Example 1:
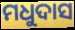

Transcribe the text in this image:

ମଧୁଦାସ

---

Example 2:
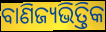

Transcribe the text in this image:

ବାଣିଜ୍ୟଭିତ୍ତିକ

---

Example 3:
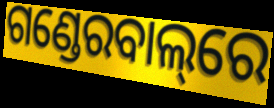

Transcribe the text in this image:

ଗଣ୍ଡେରବାଲ୍‌ରେ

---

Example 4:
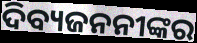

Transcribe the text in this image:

ଦିବ୍ୟଜନନୀଙ୍କର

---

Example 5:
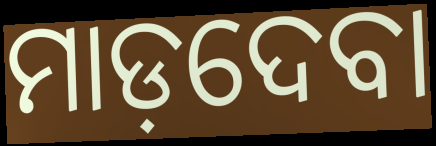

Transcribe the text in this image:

ମାଡ଼ଦେବା